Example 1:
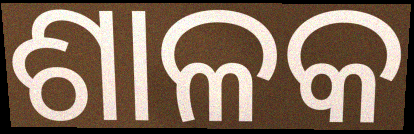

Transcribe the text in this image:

ଶାଳକ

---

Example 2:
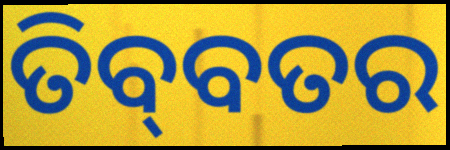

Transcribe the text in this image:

ତିବ୍‌ବତର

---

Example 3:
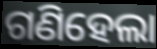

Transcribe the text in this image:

ଗଣିହେଲା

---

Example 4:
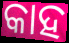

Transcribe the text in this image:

କାହ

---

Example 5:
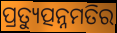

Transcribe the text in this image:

ପ୍ରତ୍ୟୁତ୍ପନ୍ନମତିର